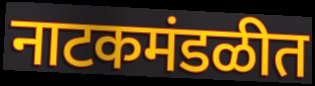
नाटकमंडळीत